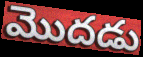
మొదడు